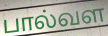
பால்வள